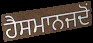
ਹੈਸਮਾਨਜਦੋਂ